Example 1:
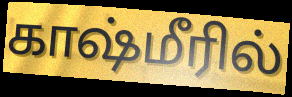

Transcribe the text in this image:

காஷ்மீரில்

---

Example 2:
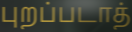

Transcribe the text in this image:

புறப்படாத்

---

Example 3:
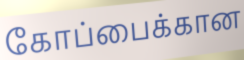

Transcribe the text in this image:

கோப்பைக்கான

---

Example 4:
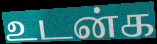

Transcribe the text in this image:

உடன்க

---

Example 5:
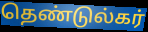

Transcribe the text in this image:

தெண்டுல்கர்